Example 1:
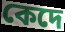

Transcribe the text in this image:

কেদে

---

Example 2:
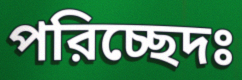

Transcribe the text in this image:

পরিচ্ছেদঃ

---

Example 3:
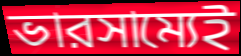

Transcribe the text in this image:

ভারসাম্যেই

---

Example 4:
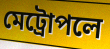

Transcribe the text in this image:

মেট্রোপলে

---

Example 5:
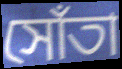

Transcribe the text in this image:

সোঁতা